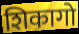
शिकागो